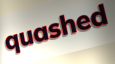
quashed